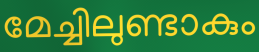
മേച്ചിലുണ്ടാകും